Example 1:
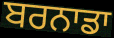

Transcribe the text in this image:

ਬਰਨਾਡਾ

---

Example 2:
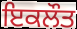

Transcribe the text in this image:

ਇਕਲੌਤ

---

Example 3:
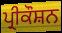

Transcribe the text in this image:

ਪ੍ਰੀਕੌਸ਼ਨ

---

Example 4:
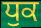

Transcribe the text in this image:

ਧੁਕ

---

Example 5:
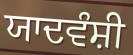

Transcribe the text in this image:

ਯਾਦਵੰਸ਼ੀ